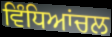
ਵਿੰਧਿਆਂਚਲ